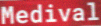
Medival